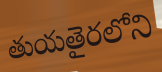
తుయతైరలోని